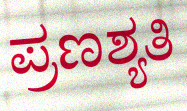
ಪ್ರಣಶ್ಯತಿ